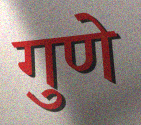
गुणे